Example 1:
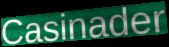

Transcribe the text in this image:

Casinader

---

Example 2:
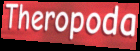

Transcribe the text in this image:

Theropoda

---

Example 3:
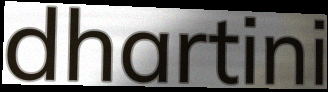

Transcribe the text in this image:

dhartini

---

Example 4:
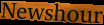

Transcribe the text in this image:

Newshour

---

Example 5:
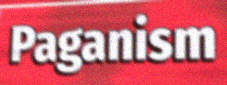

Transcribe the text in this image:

Paganism